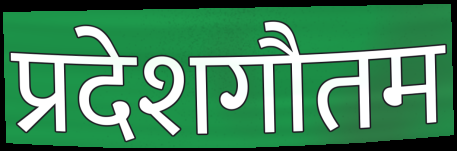
प्रदेशगौतम